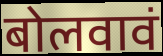
बोलवावं